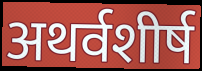
अथर्वशीर्ष